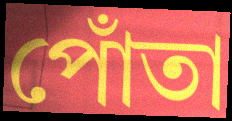
পোঁতা